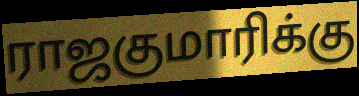
ராஜகுமாரிக்கு